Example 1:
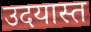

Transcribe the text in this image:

उदयास्त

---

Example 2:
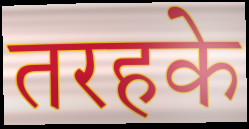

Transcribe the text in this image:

तरहके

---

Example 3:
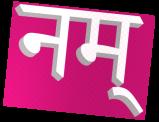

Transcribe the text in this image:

नम्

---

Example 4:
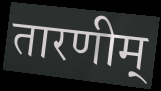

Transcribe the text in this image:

तारणीम्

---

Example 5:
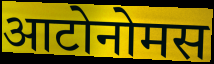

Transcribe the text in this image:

आटोनोमस